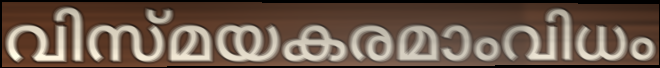
വിസ്മയകരമാംവിധം